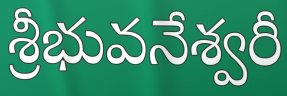
శ్రీభువనేశ్వరీ